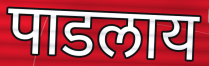
पाडलाय